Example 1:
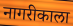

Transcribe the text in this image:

नागरीकाला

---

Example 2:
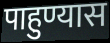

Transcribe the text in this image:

पाहुण्यास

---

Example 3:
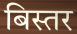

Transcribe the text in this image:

बिस्तर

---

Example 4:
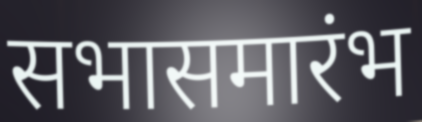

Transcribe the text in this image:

सभासमारंभ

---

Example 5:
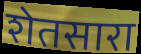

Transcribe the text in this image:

शेतसारा